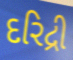
દરિદ્રી